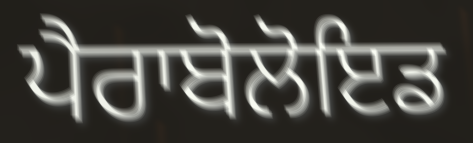
ਪੈਰਾਬੋਲੋਇਡ